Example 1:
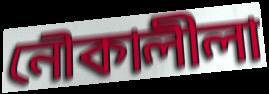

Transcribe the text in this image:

নৌকালীলা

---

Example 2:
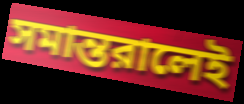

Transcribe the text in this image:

সমান্তরালেই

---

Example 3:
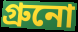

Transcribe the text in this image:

গ্রুনো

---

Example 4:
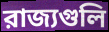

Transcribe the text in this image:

রাজ্যগুলি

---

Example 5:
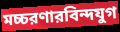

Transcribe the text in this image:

মচ্চরণারবিন্দযুগ